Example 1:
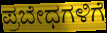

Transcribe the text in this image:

ಪ್ರಬೇಧಗಳಿಗೆ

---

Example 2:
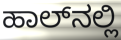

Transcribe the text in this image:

ಹಾಲ್‌ನಲ್ಲಿ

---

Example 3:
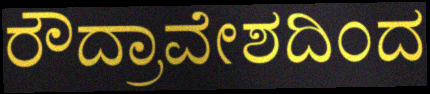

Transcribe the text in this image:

ರೌದ್ರಾವೇಶದಿಂದ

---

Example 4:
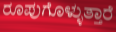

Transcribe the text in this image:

ರೂಪುಗೊಳ್ಳುತ್ತಾರೆ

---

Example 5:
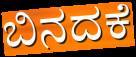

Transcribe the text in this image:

ಬಿನದಕೆ